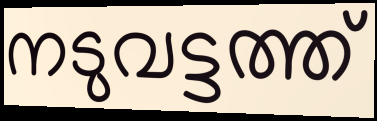
നടുവട്ടത്ത്